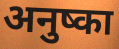
अनुष्का